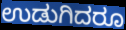
ಉಡುಗಿದರೂ